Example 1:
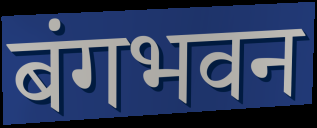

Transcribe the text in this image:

बंगभवन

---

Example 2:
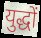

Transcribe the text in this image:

युद्धों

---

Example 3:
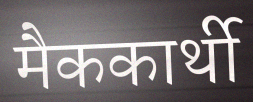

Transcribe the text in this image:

मैककार्थी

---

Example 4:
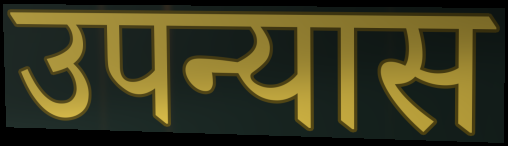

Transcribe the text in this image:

उपन्यास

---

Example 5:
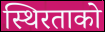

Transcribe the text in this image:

स्थिरताको